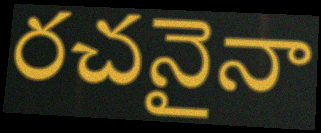
రచనైనా